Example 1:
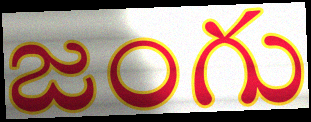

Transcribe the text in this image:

జంగు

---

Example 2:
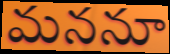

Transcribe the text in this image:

మననూ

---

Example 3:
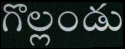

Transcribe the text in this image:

గొల్లండు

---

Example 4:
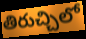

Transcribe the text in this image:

తిరుచ్చిలో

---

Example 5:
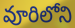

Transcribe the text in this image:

వూరిలోని